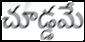
చూడ్డమే